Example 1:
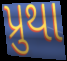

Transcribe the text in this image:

પ્રુથા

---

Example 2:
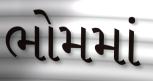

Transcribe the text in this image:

ભોમમાં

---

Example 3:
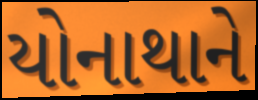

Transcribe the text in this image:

યોનાથાને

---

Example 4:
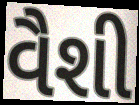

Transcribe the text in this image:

વૈશી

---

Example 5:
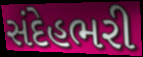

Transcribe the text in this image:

સંદેહભરી